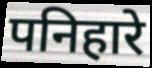
पनिहारे